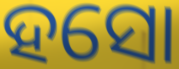
ହସୋ